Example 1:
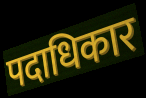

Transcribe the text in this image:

पदाधिकार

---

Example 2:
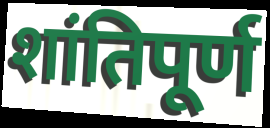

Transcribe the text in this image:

शांतिपूर्ण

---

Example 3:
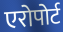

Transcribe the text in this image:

एरोपोर्ट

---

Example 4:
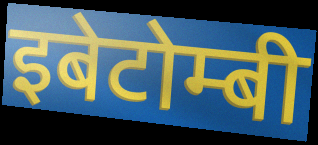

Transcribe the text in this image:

इबेटोम्बी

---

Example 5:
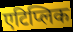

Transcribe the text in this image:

एटिप्लिक